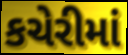
કચેરીમાં